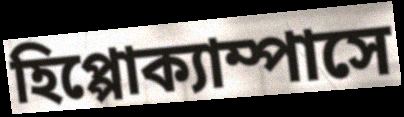
হিপ্পোক্যাম্পাসে